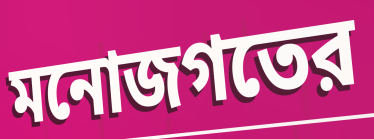
মনোজগতের